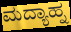
ಮದ್ಯಾಹ್ನ